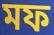
মফ